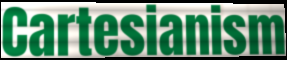
Cartesianism